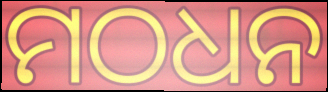
ମଠଧନ